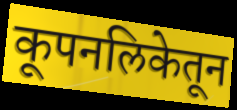
कूपनलिकेतून